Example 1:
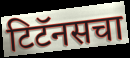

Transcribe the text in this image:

टिटॅनसचा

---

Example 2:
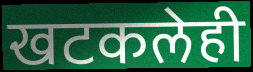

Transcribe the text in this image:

खटकलेही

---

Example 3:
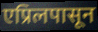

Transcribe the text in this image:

एप्रिलपासून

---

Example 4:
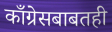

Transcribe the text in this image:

काँग्रेसबाबतही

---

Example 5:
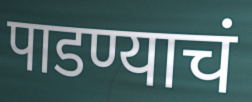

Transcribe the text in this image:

पाडण्याचं